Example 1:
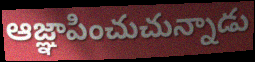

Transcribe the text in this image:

ఆజ్ఞాపించుచున్నాడు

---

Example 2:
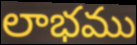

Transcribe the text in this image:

లాభము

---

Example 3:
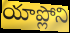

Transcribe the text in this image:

యాప్లోని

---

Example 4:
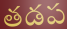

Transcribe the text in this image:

తడప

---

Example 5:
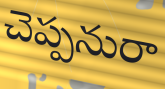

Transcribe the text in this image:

చెప్పనురా